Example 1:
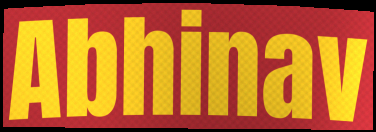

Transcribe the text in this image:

Abhinav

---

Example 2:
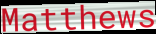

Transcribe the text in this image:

Matthews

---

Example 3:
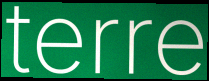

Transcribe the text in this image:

terre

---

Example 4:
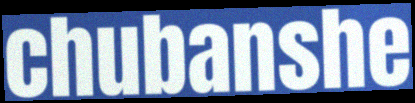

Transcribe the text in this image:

chubanshe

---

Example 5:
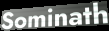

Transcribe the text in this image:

Sominath